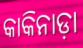
କାକିନାଡ଼ା